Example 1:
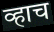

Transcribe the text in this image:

व्हाच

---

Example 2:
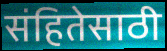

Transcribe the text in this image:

संहितेसाठी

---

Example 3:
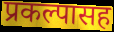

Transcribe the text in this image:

प्रकल्पासह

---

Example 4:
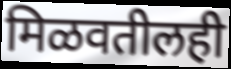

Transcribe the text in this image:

मिळवतीलही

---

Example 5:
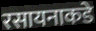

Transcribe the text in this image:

रसायनाकडे